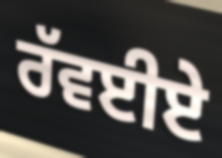
ਰੱਵਈਏ